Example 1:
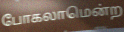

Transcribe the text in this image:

போகலாமென்ற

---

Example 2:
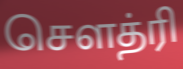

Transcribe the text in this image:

சௌத்ரி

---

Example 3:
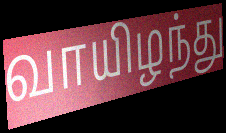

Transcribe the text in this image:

வாயிழந்து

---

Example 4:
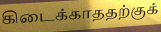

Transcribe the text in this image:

கிடைக்காததற்குக்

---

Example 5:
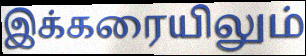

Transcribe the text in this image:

இக்கரையிலும்